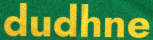
dudhne